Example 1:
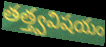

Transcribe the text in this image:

తత్త్వవిషయం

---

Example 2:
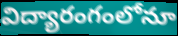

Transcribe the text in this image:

విద్యారంగంలోనూ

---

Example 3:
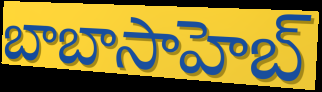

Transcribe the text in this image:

బాబాసాహెబ్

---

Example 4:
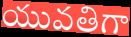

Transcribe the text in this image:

యువతిగా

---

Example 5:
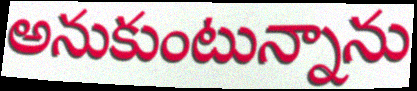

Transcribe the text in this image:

అనుకుంటున్నాను